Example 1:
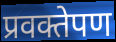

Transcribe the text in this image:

प्रवक्तेपण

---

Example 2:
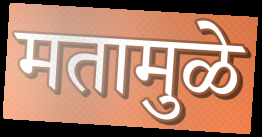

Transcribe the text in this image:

मतामुळे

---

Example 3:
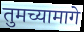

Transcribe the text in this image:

तुमच्यामागे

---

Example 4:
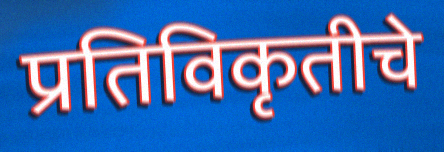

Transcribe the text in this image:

प्रतिविकृतीचे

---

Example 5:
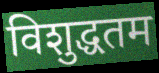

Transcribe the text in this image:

विशुद्धतम